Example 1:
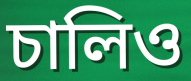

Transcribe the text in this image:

চালিও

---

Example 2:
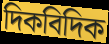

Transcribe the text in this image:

দিকবিদিক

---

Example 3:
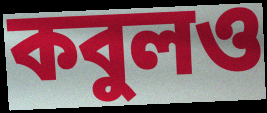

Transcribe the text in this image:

কবুলও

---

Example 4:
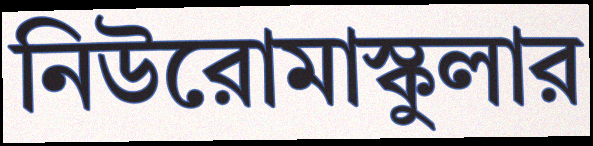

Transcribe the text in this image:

নিউরোমাস্কুলার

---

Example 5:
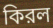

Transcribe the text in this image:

কিরল